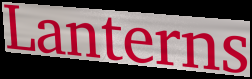
Lanterns